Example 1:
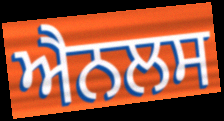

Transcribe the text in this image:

ਐਨਲਸ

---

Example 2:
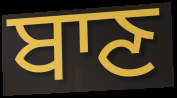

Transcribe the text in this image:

ਬਾਣ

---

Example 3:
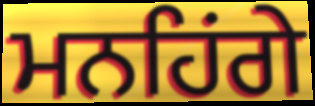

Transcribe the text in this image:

ਮਨਹਿਂਗੇ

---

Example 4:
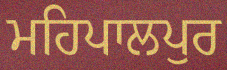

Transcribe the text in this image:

ਮਹਿਪਾਲਪੁਰ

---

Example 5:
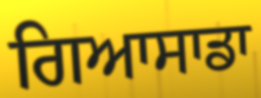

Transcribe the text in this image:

ਗਿਆਸਾਡਾ